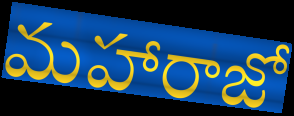
మహారాజో